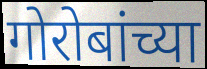
गोरोबांच्या